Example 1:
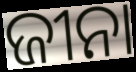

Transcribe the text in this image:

ଜୀନା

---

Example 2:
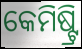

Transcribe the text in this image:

କେମିଷ୍ଟ୍ରି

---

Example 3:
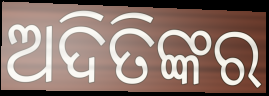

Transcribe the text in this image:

ଅଦିତିଙ୍କର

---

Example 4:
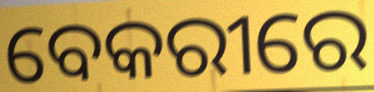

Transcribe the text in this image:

ବେକରୀରେ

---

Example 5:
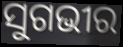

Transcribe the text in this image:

ସୁଗଭୀର